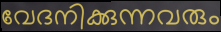
വേദനിക്കുന്നവരും